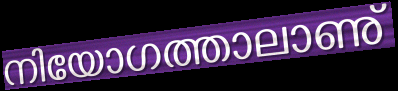
നിയോഗത്താലാണു്